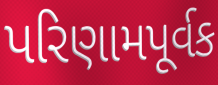
પરિણામપૂર્વક